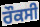
ਰੌਕਸੀ